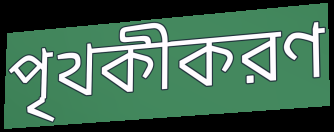
পৃথকীকরণ